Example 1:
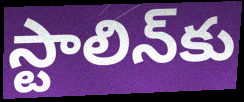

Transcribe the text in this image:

స్టాలిన్‌కు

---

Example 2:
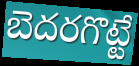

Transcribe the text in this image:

బెదరగొట్టే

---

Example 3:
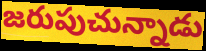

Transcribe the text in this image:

జరుపుచున్నాడు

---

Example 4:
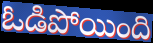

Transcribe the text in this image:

ఓడిపోయింది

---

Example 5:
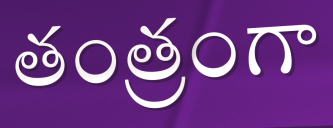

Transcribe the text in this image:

తంత్రంగా